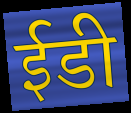
ईडी